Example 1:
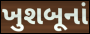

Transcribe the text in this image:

ખુશબૂનાં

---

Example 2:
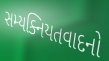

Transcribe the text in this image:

સમ્યક્નિયતવાદનો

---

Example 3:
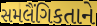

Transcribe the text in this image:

સમલૈંગિકતાને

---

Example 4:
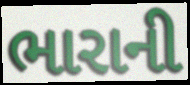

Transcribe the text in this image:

ભારાની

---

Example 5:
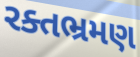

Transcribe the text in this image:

રક્તભ્રમણ